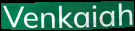
Venkaiah